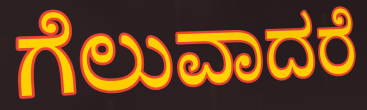
ಗೆಲುವಾದರೆ